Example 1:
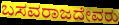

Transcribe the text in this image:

ಬಸವರಾಜದೇವರು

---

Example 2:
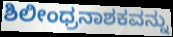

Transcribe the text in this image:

ಶಿಲೀಂಧ್ರನಾಶಕವನ್ನು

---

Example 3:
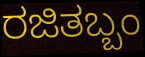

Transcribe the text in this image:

ರಜಿತಬ್ಬಂ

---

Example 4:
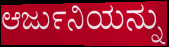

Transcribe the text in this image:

ಆರ್ಜುನಿಯನ್ನು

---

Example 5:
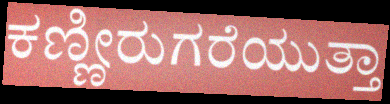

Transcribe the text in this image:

ಕಣ್ಣೀರುಗರೆಯುತ್ತಾ